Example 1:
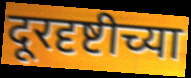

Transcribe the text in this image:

दूरदृष्टीच्या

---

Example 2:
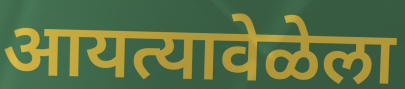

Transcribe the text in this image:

आयत्यावेळेला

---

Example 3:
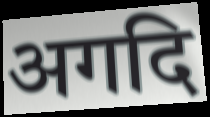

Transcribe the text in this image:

अगदि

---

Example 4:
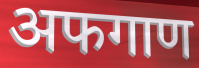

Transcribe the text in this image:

अफगाण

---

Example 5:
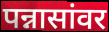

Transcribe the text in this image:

पन्नासांवर